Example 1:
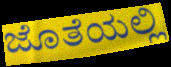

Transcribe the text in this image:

ಜೊತೆಯಲ್ಲಿ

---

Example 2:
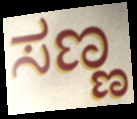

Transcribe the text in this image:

ಸಣ್ಣ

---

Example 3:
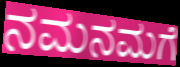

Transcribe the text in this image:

ನಮನಮಗೆ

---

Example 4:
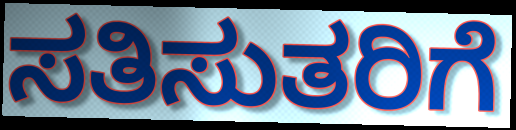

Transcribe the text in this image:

ಸತಿಸುತರಿಗೆ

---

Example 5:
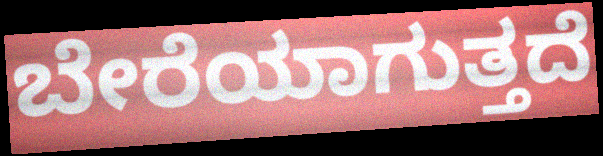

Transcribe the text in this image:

ಬೇರೆಯಾಗುತ್ತದೆ